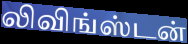
லிவிங்ஸ்டன்